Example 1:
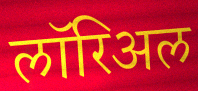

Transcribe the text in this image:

लॉरिअल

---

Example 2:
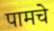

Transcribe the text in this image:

पामचे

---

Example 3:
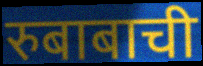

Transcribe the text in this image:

रुबाबाची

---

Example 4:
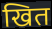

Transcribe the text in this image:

खित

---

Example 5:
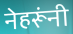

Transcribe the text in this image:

नेहरूंनी